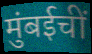
मुंबईचीं